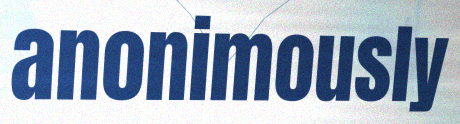
anonimously